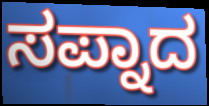
ಸಪ್ನಾದ